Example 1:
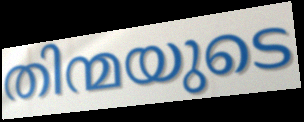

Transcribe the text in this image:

തിന്മയുടെ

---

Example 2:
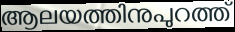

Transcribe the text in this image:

ആലയത്തിനുപുറത്ത്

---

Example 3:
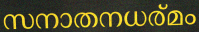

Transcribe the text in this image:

സനാതനധര്മം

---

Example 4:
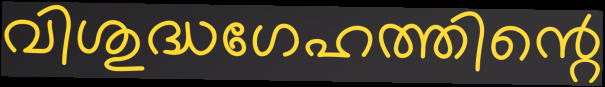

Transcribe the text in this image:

വിശുദ്ധഗേഹത്തിന്റെ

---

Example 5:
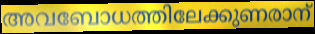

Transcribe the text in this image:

അവബോധത്തിലേക്കുണരാന്